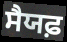
ਸੈਯਫ਼